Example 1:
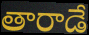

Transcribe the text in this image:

తారాడే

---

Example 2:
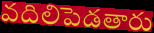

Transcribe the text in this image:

వదిలిపెడతారు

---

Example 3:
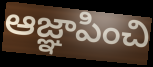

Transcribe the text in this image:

ఆజ్ఞాపించి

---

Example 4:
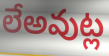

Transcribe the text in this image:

లేఅవుట్ల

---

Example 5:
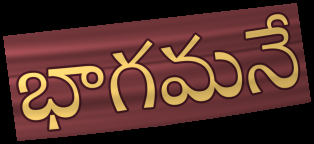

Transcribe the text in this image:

భాగమనే